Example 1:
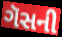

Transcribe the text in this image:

ગૅસની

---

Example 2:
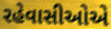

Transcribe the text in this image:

રહેવાસીઓએ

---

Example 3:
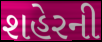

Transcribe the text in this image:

શહેરની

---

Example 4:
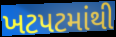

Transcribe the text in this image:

ખટપટમાંથી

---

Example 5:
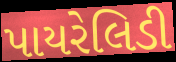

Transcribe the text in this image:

પાયરેલિડી